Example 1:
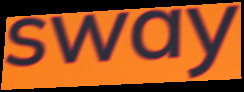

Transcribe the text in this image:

sway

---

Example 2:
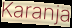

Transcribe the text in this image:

Karanja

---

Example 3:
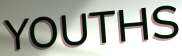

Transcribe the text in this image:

YOUTHS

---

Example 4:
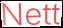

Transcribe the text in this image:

Nett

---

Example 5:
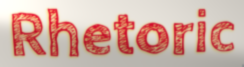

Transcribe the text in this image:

Rhetoric